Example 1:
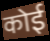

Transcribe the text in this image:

कोई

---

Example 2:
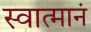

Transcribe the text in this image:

स्वात्मानं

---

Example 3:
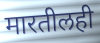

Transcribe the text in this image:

मारतीलही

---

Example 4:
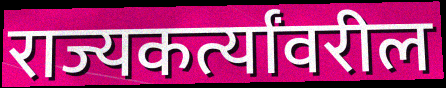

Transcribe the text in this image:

राज्यकर्त्यांवरील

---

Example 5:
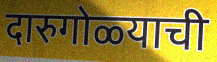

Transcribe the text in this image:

दारुगोळ्याची